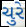
ચુરે